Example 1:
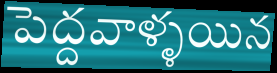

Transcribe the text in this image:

పెద్దవాళ్ళయిన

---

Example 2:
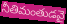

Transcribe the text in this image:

నీతిమంతుడవై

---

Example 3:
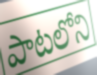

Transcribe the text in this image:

పాటలోని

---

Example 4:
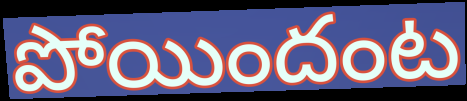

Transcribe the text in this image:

పోయిందంట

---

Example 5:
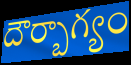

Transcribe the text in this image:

దౌర్బాగ్యం